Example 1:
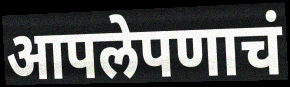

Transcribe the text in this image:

आपलेपणाचं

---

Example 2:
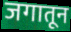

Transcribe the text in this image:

जगातून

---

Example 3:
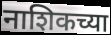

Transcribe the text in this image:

नाशिकच्या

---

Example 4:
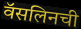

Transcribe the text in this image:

वॅसलिनची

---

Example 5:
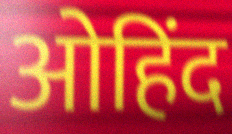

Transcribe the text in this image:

ओहिंद